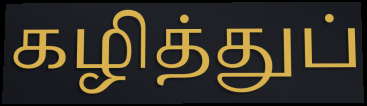
கழித்துப்